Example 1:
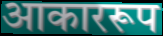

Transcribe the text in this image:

आकाररूप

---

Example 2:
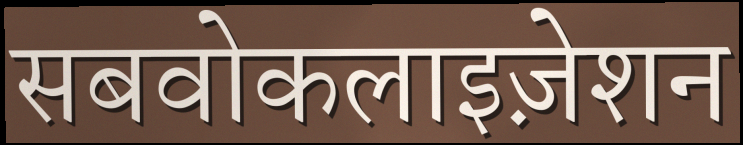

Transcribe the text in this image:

सबवोकलाइज़ेशन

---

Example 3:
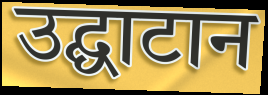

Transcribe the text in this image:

उद्घाटान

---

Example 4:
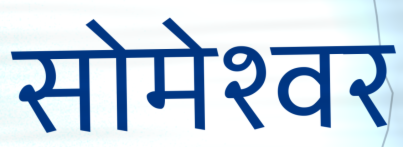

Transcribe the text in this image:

सोमेश्वर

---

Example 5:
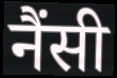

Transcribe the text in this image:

नैंसी